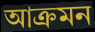
আক্ৰমন